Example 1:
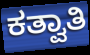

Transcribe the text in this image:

ಕತ್ವಾತಿ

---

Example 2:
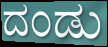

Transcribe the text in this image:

ದಂಡು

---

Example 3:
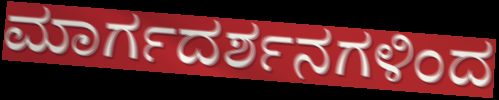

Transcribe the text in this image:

ಮಾರ್ಗದರ್ಶನಗಳಿಂದ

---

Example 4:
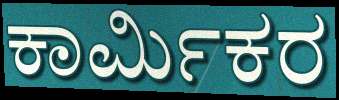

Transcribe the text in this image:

ಕಾರ್ಮಿಕರ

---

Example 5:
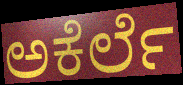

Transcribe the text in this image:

ಅಕೆರ್ಲೆ